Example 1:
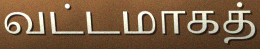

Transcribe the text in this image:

வட்டமாகத்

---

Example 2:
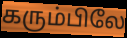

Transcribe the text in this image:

கரும்பிலே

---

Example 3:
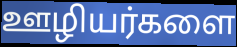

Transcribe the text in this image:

ஊழியர்களை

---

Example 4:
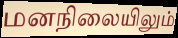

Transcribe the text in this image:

மனநிலையிலும்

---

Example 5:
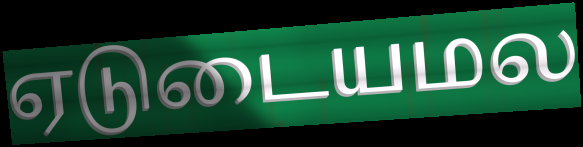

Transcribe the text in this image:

ஏடுடையமல